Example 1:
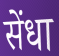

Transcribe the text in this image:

सेंधा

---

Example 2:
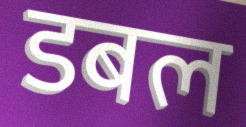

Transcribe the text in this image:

डबल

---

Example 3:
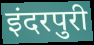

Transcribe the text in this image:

इंदरपुरी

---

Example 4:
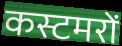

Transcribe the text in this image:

कस्टमरों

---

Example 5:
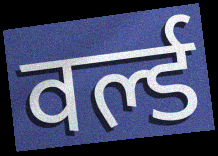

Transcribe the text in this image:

वर्ल्‍ड